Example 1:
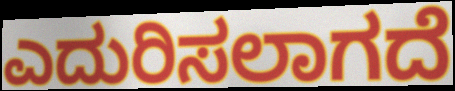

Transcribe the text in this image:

ಎದುರಿಸಲಾಗದೆ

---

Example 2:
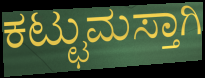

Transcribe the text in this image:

ಕಟ್ಟುಮಸ್ತಾಗಿ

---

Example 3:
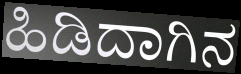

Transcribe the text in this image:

ಹಿಡಿದಾಗಿನ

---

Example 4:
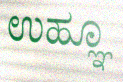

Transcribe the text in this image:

ಉಹ್ಞೂ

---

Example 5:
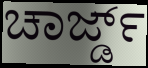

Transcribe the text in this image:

ಚಾರ್ಜ್ಡ್